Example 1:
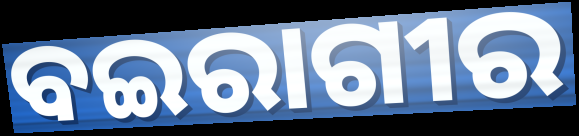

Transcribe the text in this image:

ବଇରାଗୀର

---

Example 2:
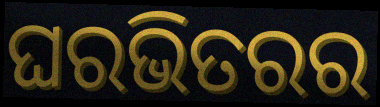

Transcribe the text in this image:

ଘରଭିତରର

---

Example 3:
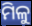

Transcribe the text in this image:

ମିଳୁ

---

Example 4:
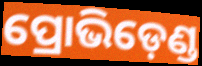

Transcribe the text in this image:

ପ୍ରୋଭିଡ଼େଣ୍ଡ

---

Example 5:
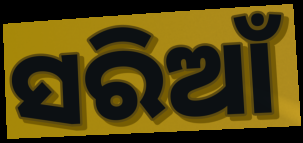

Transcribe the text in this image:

ସରିଆଁ